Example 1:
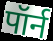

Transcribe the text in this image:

पॉर्न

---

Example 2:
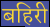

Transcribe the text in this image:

बहिरी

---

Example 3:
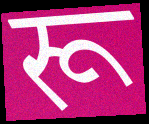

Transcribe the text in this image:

रू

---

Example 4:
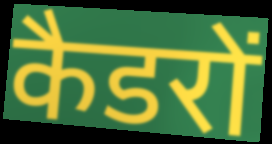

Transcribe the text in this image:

कैडरों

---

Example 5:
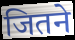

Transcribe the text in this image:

जितने